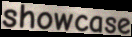
showcase